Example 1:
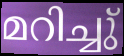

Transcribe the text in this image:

മറിച്ചു്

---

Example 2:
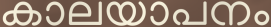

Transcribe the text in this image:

കാലയാപനം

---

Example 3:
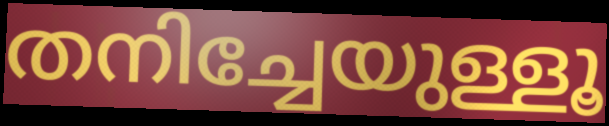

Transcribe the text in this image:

തനിച്ചേയുള്ളൂ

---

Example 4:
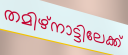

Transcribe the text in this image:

തമിഴ്നാട്ടിലേക്ക്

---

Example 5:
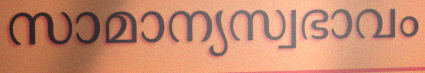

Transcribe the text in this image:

സാമാന്യസ്വഭാവം